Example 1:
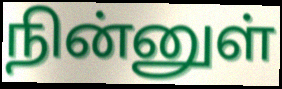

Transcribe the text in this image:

நின்னுள்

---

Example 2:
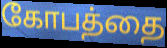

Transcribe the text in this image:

கோபத்தை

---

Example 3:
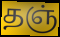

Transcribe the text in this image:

தஞ்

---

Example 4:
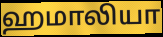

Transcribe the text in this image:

ஹமாலியா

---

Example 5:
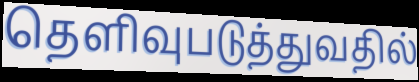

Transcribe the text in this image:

தெளிவுபடுத்துவதில்